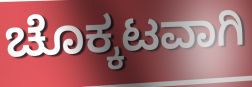
ಚೊಕ್ಕಟವಾಗಿ